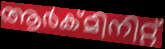
ആർക്മിനിറ്റ്